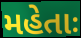
મહેતાઃ